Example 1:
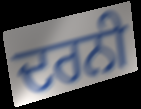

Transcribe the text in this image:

ਦਰਨੀ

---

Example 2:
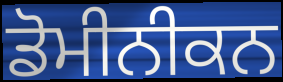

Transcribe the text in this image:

ਡੋਮੀਨੀਕਨ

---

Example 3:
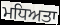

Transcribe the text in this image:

ਮਧਿਅਤਾ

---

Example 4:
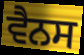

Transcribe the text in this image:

ਵੈਨਸ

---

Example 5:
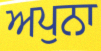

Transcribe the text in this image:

ਅਪੁਨਾ